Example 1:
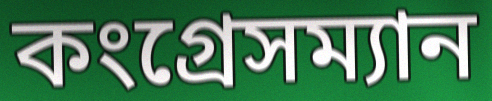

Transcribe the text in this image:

কংগ্রেসম্যান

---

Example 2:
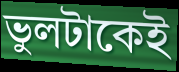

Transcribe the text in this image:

ভুলটাকেই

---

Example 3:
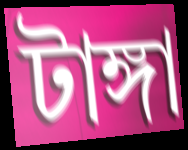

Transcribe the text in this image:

টাঙ্গা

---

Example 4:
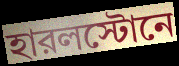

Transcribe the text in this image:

হারলস্টোনে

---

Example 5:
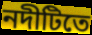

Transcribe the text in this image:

নদীটিতে